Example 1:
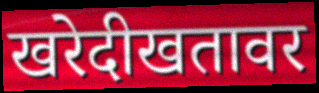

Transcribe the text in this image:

खरेदीखतावर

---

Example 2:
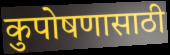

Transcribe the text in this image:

कुपोषणासाठी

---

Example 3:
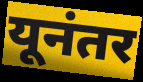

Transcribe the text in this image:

यूनंतर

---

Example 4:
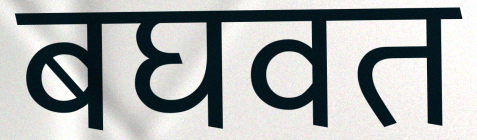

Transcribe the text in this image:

बघवत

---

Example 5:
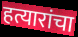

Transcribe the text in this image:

हत्यारांचा